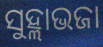
ସୁହ୍ଲାଭଜା